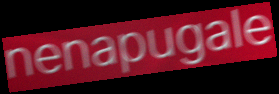
nenapugale